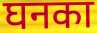
घनका